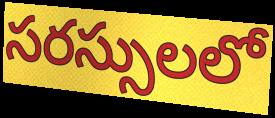
సరస్సులలో